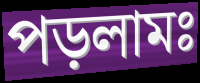
পড়লামঃ